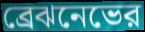
ব্রেঝনেভের